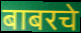
बाबरचे